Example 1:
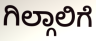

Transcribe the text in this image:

ಗಿಲ್ಗಾಲಿಗೆ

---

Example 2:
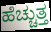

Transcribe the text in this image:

ಹೆಚ್ಚುತ್ತ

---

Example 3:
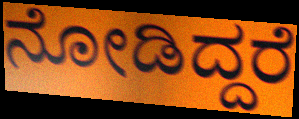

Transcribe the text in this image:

ನೋಡಿದ್ದರೆ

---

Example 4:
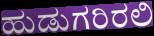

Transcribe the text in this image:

ಹುಡುಗರಿರಲಿ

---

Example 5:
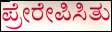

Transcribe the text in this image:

ಪ್ರೇರೇಪಿಸಿತು